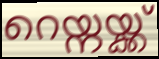
റെയ്നയ്ക്ക്